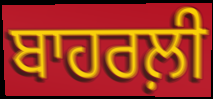
ਬਾਹਰਲ਼ੀ